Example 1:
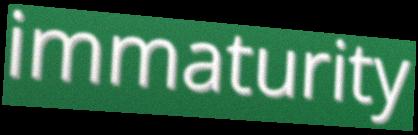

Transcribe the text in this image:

immaturity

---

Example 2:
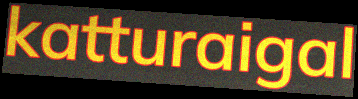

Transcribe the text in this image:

katturaigal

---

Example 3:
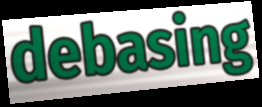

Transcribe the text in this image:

debasing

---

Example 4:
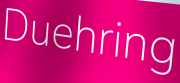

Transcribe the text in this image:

Duehring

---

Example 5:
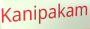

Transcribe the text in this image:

Kanipakam